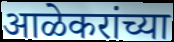
आळेकरांच्या